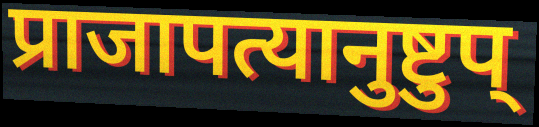
प्राजापत्यानुष्टुप्